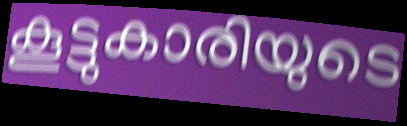
കൂട്ടുകാരിയുടെ